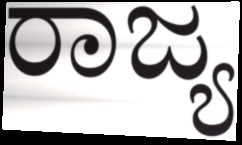
ರಾಜ್ಯ